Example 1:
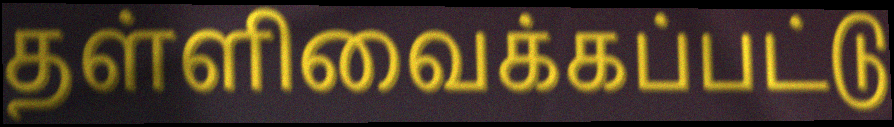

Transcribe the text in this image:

தள்ளிவைக்கப்பட்டு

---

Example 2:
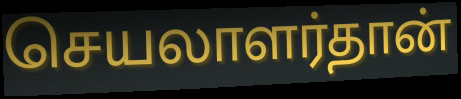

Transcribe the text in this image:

செயலாளர்தான்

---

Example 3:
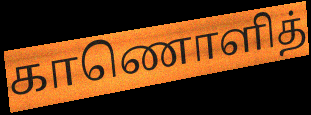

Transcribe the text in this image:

காணொளித்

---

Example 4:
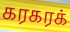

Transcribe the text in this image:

கரகரக்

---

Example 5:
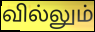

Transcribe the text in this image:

வில்லும்